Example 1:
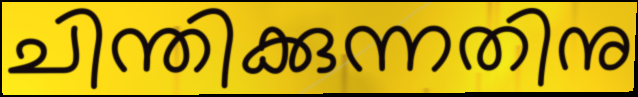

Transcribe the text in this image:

ചിന്തിക്കുന്നതിനു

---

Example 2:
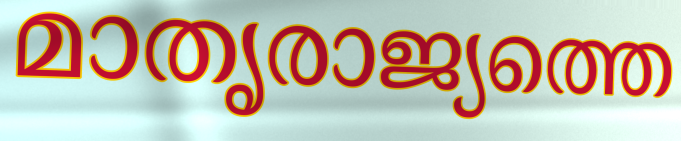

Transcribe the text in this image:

മാതൃരാജ്യത്തെ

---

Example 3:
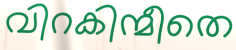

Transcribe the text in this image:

വിറകിന്മീതെ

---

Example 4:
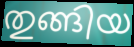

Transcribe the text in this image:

തുങ്ങിയ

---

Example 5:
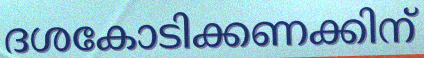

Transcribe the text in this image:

ദശകോടിക്കണക്കിന്